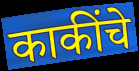
काकींचे